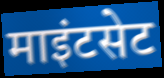
माइंटसेट